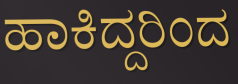
ಹಾಕಿದ್ದರಿಂದ